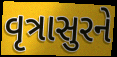
વૃત્રાસુરને